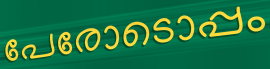
പേരോടൊപ്പം